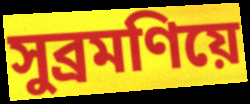
সুব্ৰমণিয়ে